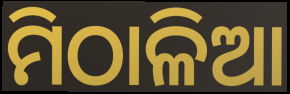
ମିଠାଳିଆ